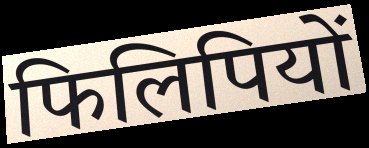
फिलिपियों